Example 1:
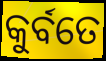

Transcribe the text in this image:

କୁର୍ବତେ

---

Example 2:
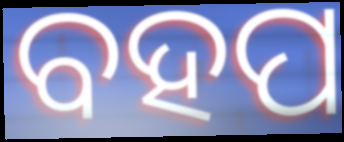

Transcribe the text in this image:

ବହପ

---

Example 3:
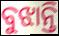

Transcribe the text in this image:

ବୁଝାନ୍ତି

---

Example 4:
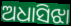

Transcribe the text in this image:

ଅଧାସିଝା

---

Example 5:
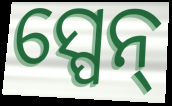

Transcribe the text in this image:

ସ୍ପେନ୍